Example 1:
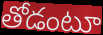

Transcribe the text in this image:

తోడంటూ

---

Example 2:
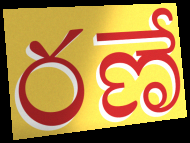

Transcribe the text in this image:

రణే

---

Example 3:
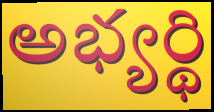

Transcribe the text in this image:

అభ్యర్థి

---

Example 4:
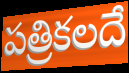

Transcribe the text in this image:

పత్రికలదే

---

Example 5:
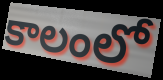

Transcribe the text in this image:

కాలంలో